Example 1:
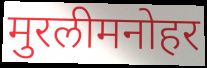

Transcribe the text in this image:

मुरलीमनोहर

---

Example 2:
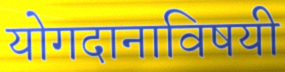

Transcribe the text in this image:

योगदानाविषयी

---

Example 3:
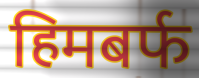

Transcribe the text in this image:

हिमबर्फ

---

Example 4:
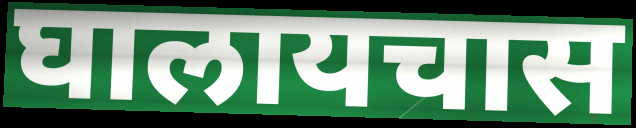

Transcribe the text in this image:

घालायचास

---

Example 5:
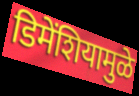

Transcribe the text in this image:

डिमेंशियामुळे